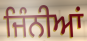
ਜਿੰਨੀਆਂ